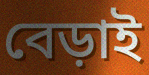
বেড়াই